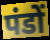
पंडों